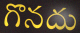
గొనదు